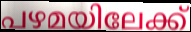
പഴമയിലേക്ക്